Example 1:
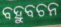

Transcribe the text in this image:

ବହୁବଚନ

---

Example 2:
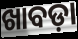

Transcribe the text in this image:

ଖାବଡ଼ା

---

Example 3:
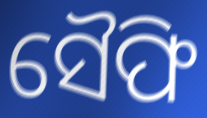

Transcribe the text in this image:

ସୈଫି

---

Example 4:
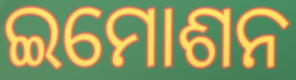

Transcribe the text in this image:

ଇମୋଶନ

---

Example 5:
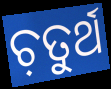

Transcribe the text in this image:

ଚ଼ତୁର୍ଥ